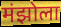
मंझोला